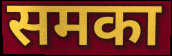
समका